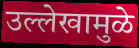
उल्लेखामुळे